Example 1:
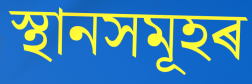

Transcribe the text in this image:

স্থানসমূহৰ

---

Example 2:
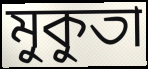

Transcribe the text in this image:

মুকুতা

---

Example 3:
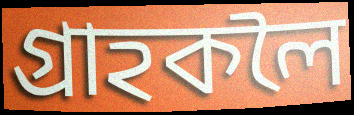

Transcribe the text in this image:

গ্ৰাহকলৈ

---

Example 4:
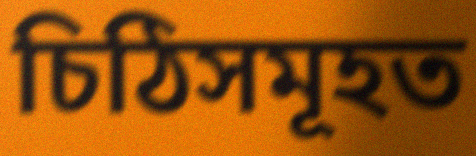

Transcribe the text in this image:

চিঠিসমূহত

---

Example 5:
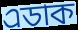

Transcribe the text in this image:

এডাক